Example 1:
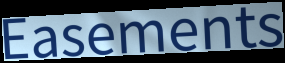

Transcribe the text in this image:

Easements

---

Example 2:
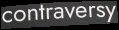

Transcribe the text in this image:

contraversy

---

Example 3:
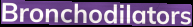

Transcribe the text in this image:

Bronchodilators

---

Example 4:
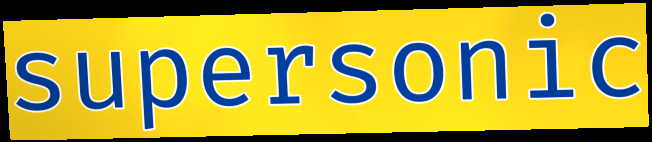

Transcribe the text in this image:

supersonic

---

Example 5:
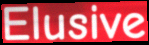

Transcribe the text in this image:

Elusive